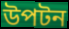
উপটন